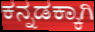
ಕನ್ನಡಕ್ಕಾಗಿ